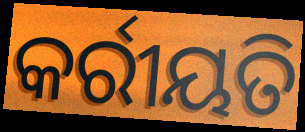
କର୍ରୀୟତି